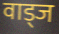
वाड्ज